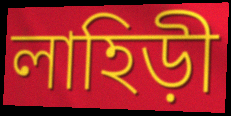
লাহিড়ী